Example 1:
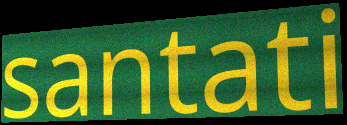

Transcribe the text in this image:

santati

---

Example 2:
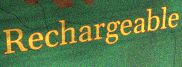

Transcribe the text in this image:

Rechargeable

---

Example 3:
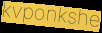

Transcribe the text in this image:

kvponkshe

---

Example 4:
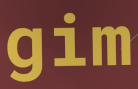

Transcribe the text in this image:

gim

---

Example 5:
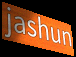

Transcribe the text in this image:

jashun